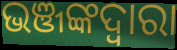
ଭଞ୍ଜଙ୍କଦ୍ୱାରା